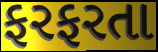
ફરફરતા